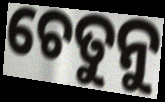
ଚେତୁନୁ